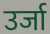
उर्जा